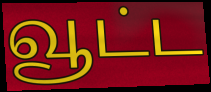
வூட்ட